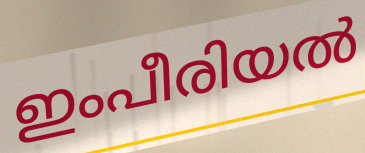
ഇംപീരിയൽ